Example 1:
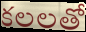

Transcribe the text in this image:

కలలతో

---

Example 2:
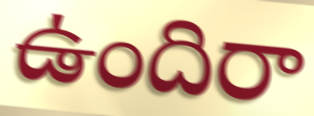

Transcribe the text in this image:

ఉందిరా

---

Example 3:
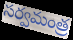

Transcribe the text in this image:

సర్వమంత్ర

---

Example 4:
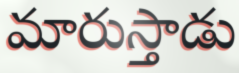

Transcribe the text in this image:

మారుస్తాడు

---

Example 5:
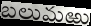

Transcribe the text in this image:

బలుమఱు